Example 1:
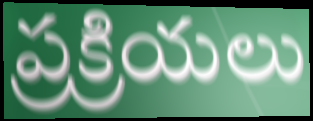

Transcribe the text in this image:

ప్రక్రియలు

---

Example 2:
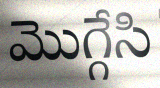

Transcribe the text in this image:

మొగ్గేసి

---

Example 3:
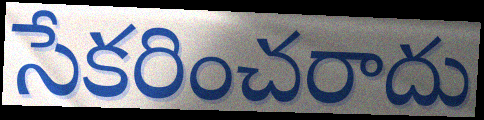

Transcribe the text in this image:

సేకరించరాదు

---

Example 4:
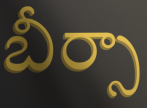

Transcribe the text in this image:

బీర్సా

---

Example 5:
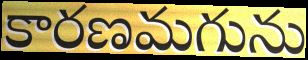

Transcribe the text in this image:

కారణమగును